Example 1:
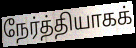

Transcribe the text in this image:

நேர்த்தியாகக்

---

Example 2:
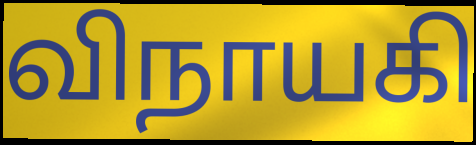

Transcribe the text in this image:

விநாயகி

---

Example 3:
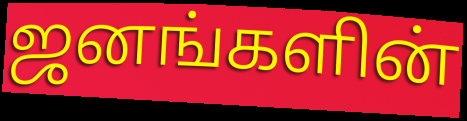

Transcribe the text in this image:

ஜனங்களின்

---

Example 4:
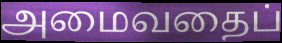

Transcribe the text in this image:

அமைவதைப்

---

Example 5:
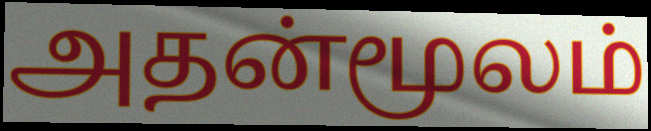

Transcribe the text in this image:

அதன்மூலம்